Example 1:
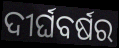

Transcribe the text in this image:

ଦୀର୍ଘବର୍ଷର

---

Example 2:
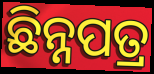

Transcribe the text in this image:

ଛିନ୍ନପତ୍ର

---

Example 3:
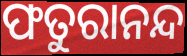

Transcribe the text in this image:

ଫତୁରାନନ୍ଦ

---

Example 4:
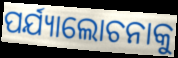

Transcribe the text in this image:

ପର୍ଯ୍ୟାଲୋଚନାକୁ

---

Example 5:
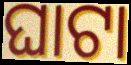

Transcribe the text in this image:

ଘାଟା